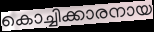
കൊച്ചിക്കാരനായ